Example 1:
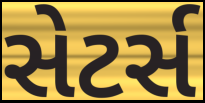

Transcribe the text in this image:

સેટર્સ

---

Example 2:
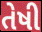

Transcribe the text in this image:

તેષી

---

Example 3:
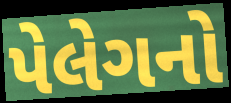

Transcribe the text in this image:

પેલેગનો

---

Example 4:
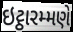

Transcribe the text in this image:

ઇટ્ઠારમ્મણે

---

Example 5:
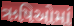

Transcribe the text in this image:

ઋષિઓમાં